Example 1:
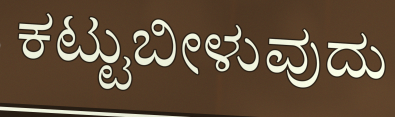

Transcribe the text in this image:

ಕಟ್ಟುಬೀಳುವುದು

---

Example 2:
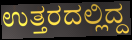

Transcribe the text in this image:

ಉತ್ತರದಲ್ಲಿದ್ದ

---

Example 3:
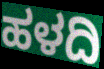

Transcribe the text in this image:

ಹಳದಿ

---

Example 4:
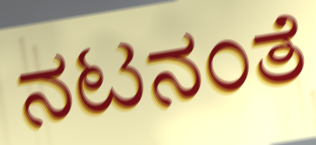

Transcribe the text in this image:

ನಟನಂತೆ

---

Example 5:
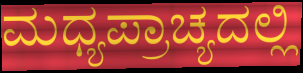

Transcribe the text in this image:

ಮಧ್ಯಪ್ರಾಚ್ಯದಲ್ಲಿ